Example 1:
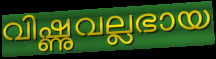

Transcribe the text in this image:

വിഷ്ണുവല്ലഭായ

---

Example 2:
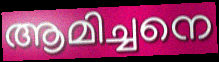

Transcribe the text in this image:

ആമിച്ചനെ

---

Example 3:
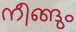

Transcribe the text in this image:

നീങ്ങും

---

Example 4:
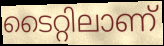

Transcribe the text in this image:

ടൈറ്റിലാണ്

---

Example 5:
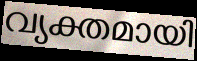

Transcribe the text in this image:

വ്യക്തമായി